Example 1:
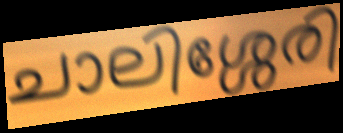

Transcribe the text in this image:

ചാലിശ്ശേരി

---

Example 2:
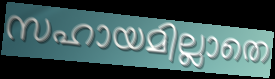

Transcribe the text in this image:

സഹായമില്ലാതെ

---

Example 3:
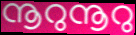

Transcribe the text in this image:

നൂറുനൂറു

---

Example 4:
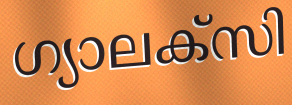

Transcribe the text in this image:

ഗ്യാലക്സി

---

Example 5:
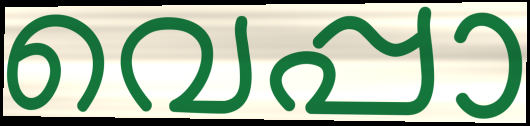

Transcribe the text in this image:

വെപ്പാ